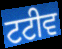
ਟਟੀਵ